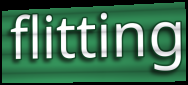
flitting